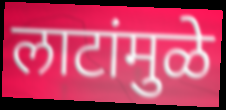
लाटांमुळे